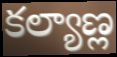
కల్యాణ్ల